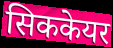
सिककेयर